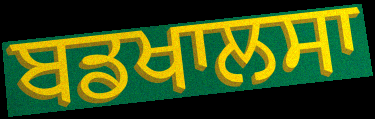
ਬਡਖਾਲਸਾ